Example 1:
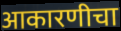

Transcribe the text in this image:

आकारणीचा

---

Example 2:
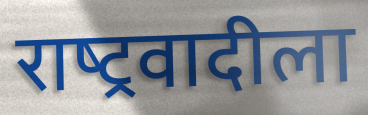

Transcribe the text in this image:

राष्ट्रवादीला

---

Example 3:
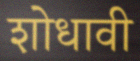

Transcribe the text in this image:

शोधावी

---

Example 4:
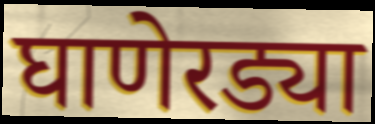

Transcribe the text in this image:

घाणेरड्या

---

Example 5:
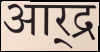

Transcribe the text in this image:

आर्द्र